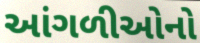
આંગળીઓનો